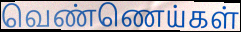
வெண்ணெய்கள்